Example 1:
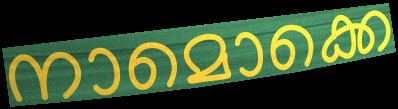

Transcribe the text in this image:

നാമൊക്കെ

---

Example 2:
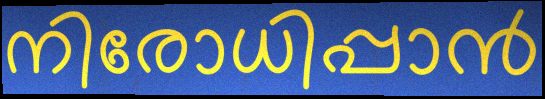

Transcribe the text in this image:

നിരോധിപ്പാൻ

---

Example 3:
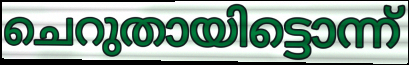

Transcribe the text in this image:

ചെറുതായിട്ടൊന്ന്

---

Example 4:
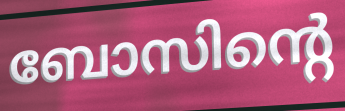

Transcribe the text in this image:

ബോസിന്റെ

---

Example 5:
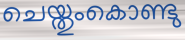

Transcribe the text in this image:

ചെയ്തുംകൊണ്ടു